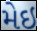
મેઇ